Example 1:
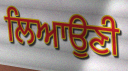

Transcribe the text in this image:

ਲਿਆਉਣੀ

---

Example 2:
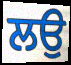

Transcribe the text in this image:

ਲਉ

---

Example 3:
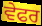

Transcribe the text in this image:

ਵੇਫਰ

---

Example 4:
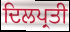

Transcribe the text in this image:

ਦਿਲਪ੍ਰਤੀ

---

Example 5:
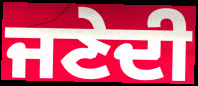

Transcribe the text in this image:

ਜਣੇਦੀ